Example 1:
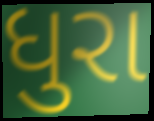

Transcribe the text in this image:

ધુરા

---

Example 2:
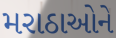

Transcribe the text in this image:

મરાઠાઓને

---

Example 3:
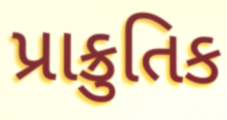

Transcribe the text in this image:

પ્રાક્રુતિક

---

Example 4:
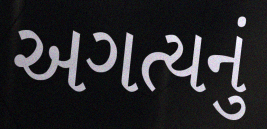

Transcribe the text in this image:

અગત્યનું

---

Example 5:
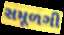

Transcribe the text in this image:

સમૂળગી